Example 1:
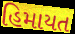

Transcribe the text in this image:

હિમાયત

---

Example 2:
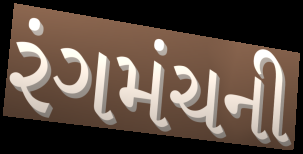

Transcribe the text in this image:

રંગમંચની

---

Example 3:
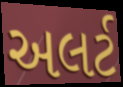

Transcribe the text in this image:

અલર્ટ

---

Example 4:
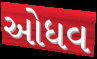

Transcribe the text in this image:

ઓધવ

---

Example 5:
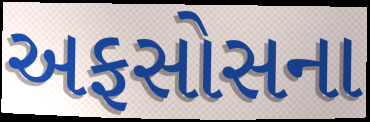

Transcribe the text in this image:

અફસોસના